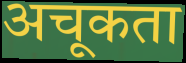
अचूकता